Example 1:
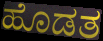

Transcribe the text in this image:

ಹೊಡತ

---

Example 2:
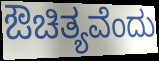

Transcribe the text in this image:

ಔಚಿತ್ಯವೆಂದು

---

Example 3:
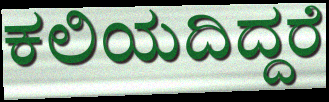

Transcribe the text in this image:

ಕಲಿಯದಿದ್ದರೆ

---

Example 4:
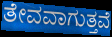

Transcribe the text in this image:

ತೇವವಾಗುತ್ತವೆ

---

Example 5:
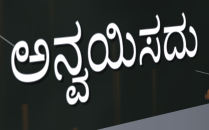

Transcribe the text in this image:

ಅನ್ವಯಿಸದು